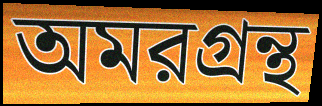
অমরগ্রন্থ